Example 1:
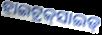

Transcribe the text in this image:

ହାଇଟ୍ରକ୍‌ସାଇଡ୍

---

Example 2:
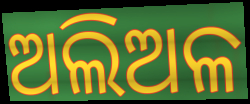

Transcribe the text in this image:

ଅଲିଅଳ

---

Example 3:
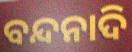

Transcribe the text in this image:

ବନ୍ଦନାଦି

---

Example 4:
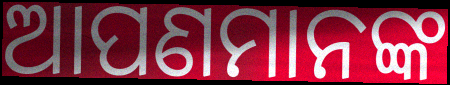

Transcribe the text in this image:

ଆପଣମାନଙ୍କ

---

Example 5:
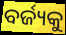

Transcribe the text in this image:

ବର୍ଜ୍ୟକୁ